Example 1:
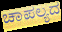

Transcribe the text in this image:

ಚಾಪಲ್ಯದ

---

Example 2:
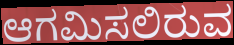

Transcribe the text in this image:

ಆಗಮಿಸಲಿರುವ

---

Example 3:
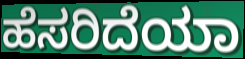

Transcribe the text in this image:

ಹೆಸರಿದೆಯಾ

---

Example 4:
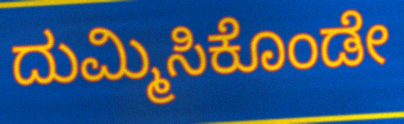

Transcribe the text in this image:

ದುಮ್ಮಿಸಿಕೊಂಡೇ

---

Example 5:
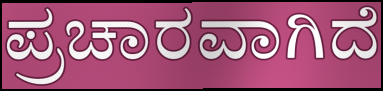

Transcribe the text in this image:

ಪ್ರಚಾರವಾಗಿದೆ